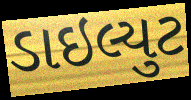
ડાઇલ્યુટ